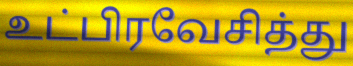
உட்பிரவேசித்து